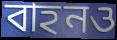
বাহনও